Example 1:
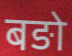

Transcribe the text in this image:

बङो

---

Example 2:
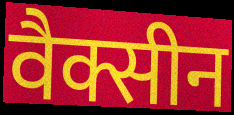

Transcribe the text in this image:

वैक्सीन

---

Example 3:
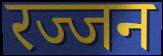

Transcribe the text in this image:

रज्जन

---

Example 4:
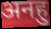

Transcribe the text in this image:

अनहु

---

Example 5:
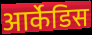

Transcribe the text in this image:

आर्केडिस